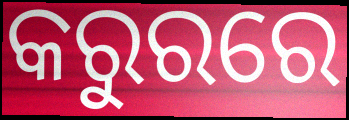
କରୁରରେ